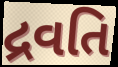
દ્રવતિ